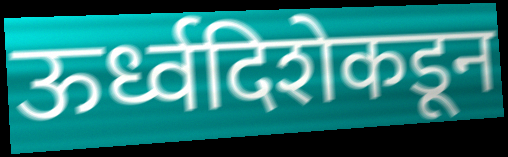
ऊर्ध्वदिशेकडून